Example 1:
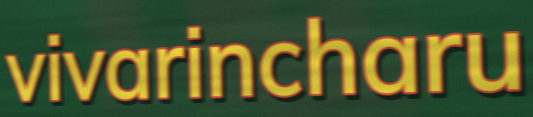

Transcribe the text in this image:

vivarincharu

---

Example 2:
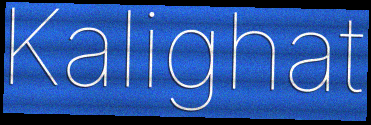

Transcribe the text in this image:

Kalighat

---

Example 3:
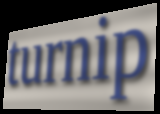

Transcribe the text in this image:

turnip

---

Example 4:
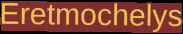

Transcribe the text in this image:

Eretmochelys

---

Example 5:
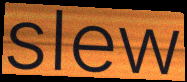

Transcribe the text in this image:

slew